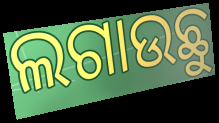
ଲଗାଉଛୁ